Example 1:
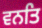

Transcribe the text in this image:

ਵਨਤਿ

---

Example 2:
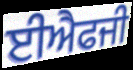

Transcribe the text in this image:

ਈਐਫਜੀ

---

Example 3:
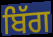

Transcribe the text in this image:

ਬਿੱਗ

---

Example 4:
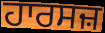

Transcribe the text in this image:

ਹਾਰਸਜ਼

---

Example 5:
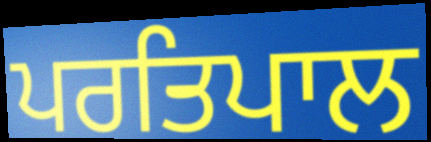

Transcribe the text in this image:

ਪਰਤਿਪਾਲ